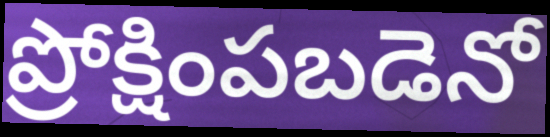
ప్రోక్షింపబడెనో